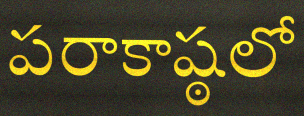
పరాకాష్ఠలో